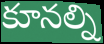
కూనల్ని